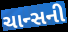
ચાન્સની